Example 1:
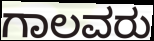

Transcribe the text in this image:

ಗಾಲವರು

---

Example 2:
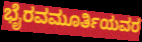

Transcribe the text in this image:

ಭೈರವಮೂರ್ತಿಯವರ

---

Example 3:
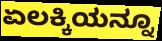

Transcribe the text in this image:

ಏಲಕ್ಕಿಯನ್ನೂ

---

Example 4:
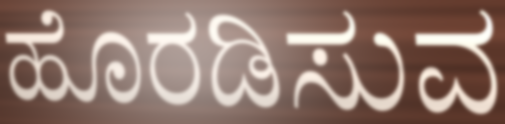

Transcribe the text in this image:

ಹೊರಡಿಸುವ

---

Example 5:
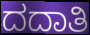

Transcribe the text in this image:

ದದಾತಿ